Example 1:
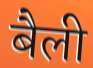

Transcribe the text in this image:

बैली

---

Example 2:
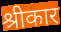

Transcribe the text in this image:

श्रीकार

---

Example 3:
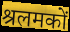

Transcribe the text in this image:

श्रलमकों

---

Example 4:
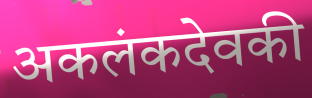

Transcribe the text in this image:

अकलंकदेवकी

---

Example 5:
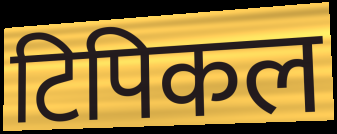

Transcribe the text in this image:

टिपिकल